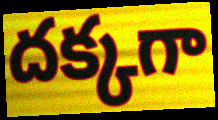
దక్కగా